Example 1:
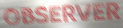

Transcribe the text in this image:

OBSERVER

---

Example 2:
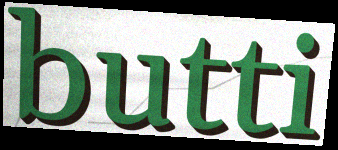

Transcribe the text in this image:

butti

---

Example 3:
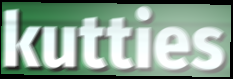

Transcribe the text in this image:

kutties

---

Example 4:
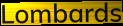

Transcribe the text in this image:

Lombards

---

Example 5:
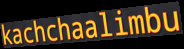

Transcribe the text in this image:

kachchaalimbu